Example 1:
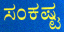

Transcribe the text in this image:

ಸಂಕಷ್ಟ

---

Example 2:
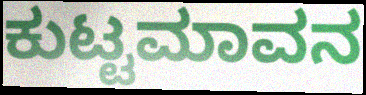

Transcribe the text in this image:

ಕುಟ್ಟಮಾವನ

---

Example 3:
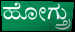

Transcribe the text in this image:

ಹೋಗ್ತ್ರು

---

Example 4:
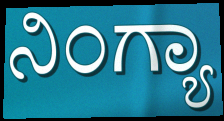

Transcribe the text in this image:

ನಿಂಗ್ಯಾ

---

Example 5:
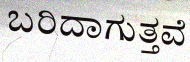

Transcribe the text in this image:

ಬರಿದಾಗುತ್ತವೆ